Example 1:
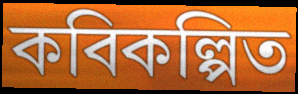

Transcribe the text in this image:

কবিকল্পিত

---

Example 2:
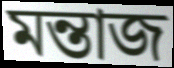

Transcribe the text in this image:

মন্তাজ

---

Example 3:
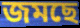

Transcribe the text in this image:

জমছে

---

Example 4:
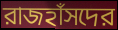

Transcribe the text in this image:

রাজহাঁসদের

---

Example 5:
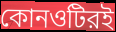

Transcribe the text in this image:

কোনওটিরই